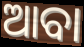
ଆବା